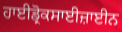
ਹਾਈਡ੍ਰੋਕਸਾਈਜ਼ਾਈਨ